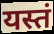
यस्तं